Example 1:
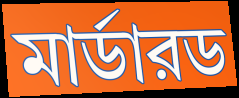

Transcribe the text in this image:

মার্ডারড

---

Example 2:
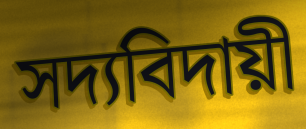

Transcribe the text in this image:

সদ্যবিদায়ী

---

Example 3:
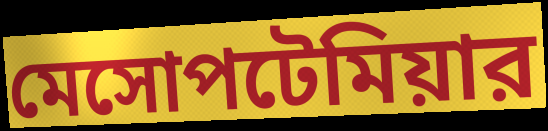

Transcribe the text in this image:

মেসোপটেমিয়ার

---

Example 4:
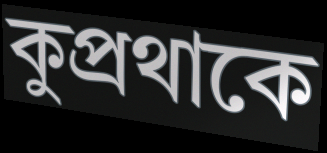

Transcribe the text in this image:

কুপ্রথাকে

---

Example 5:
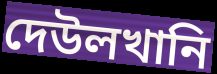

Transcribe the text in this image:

দেউলখানি